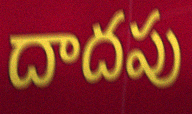
దాదపు